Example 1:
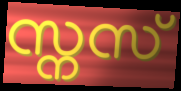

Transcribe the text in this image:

സ്നസ്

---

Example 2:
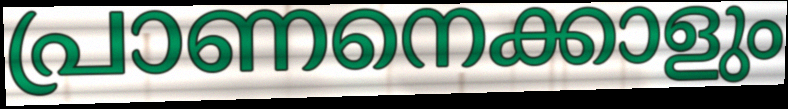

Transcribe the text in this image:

പ്രാണനെക്കാളും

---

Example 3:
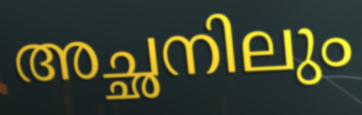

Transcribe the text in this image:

അച്ഛനിലും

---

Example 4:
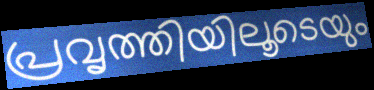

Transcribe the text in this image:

പ്രവൃത്തിയിലൂടെയും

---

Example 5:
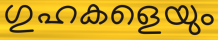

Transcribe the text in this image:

ഗുഹകളെയും